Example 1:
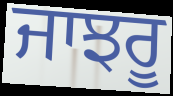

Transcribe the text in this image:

ਜਾਝਰੂ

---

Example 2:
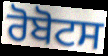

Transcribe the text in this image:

ਰੋਬੋਟਸ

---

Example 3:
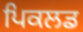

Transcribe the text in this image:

ਪਿਕਲਡ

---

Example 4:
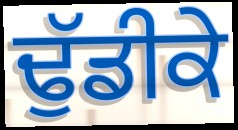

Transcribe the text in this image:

ਢੁੱਡੀਕੇ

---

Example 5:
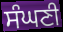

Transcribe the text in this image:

ਸੰਘਣੀ